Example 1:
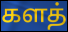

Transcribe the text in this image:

களத்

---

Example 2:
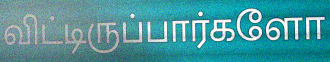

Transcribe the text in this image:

விட்டிருப்பார்களோ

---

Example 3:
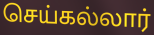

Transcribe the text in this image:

செய்கல்லார்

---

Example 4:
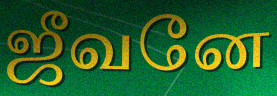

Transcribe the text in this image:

ஜீவனே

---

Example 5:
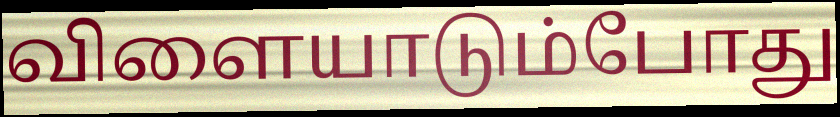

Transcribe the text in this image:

விளையாடும்போது